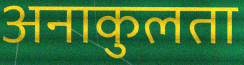
अनाकुलता